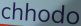
chhodo